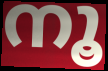
നൂ